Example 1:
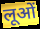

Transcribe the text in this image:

लूओं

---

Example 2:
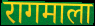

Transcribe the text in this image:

रागमाला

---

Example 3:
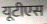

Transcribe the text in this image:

यूटीएस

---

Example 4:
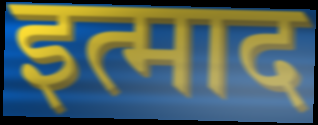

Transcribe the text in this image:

इत्माद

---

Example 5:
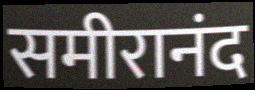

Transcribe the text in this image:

समीरानंद